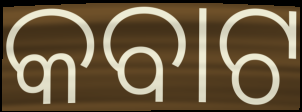
କବାଟ